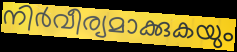
നിർവീര്യമാക്കുകയും